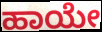
ಹಾಯೇ